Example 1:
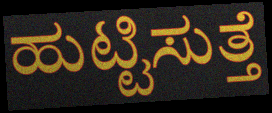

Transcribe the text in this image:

ಹುಟ್ಟಿಸುತ್ತೆ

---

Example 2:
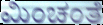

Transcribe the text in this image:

ಮಿಂಚಂತೆ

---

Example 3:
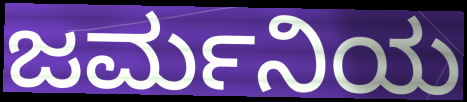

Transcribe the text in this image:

ಜರ್ಮನಿಯ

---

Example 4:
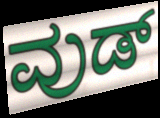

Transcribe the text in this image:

ವುಡ್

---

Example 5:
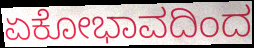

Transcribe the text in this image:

ಏಕೋಭಾವದಿಂದ